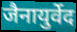
जैनायुर्वेद